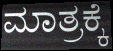
ಮಾತ್ರಕ್ಕೆ